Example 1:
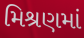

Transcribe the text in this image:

મિશ્રણમાં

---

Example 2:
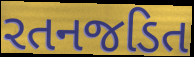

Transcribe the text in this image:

રતનજડિત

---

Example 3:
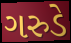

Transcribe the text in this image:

ગરુડે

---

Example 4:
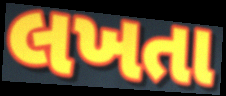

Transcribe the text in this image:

લખતા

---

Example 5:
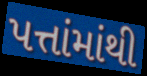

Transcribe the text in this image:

પત્તાંમાંથી